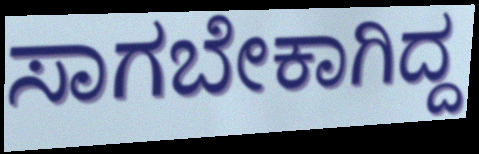
ಸಾಗಬೇಕಾಗಿದ್ದ